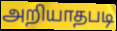
அறியாதபடி